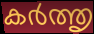
കർത്തൃ